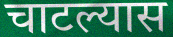
चाटल्यास